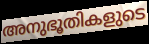
അനുഭൂതികളുടെ